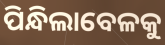
ପିନ୍ଧିଲାବେଳକୁ